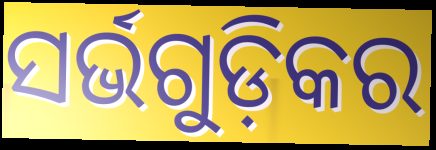
ସର୍ଭଗୁଡ଼ିକର